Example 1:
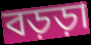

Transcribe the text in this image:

বড়ড়া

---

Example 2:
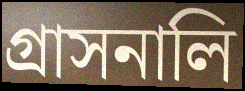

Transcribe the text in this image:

গ্রাসনালি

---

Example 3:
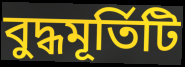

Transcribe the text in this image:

বুদ্ধমূর্তিটি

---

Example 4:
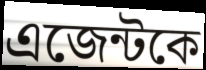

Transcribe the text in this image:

এজেন্টকে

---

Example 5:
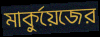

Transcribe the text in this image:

মার্কুয়েজের